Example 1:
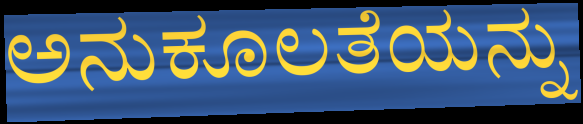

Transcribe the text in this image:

ಅನುಕೂಲತೆಯನ್ನು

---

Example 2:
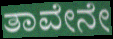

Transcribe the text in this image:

ತಾವೇನೇ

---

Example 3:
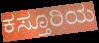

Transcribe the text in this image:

ಕಸ್ತೂರಿಯ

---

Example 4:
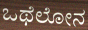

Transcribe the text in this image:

ಒಥೆಲೋನ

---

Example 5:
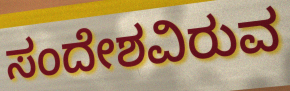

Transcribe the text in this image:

ಸಂದೇಶವಿರುವ